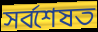
সৰ্বশেষত